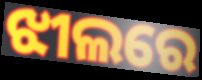
ଝୀଲରେ